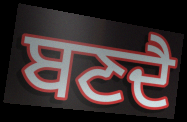
ਬਣਦੈ